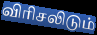
விரிசலிடும்